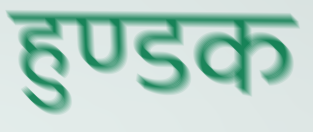
हुण्डक